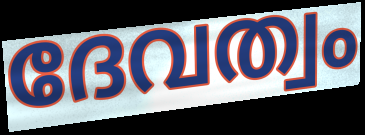
ദേവത്വം